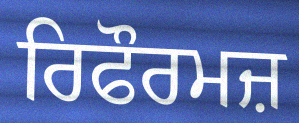
ਰਿਫੌਰਮਜ਼